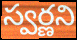
స్వర్ణని